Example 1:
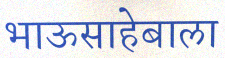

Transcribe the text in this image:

भाऊसाहेबाला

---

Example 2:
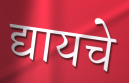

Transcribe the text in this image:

द्यायचे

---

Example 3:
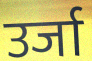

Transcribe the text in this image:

उर्जा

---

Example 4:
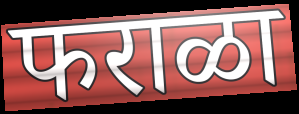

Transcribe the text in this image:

फराळा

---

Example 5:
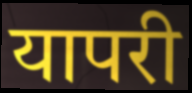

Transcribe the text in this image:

यापरी